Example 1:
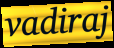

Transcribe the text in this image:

vadiraj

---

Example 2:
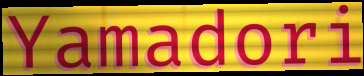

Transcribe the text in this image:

Yamadori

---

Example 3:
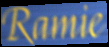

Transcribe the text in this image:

Ramie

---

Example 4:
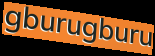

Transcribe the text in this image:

gburugburu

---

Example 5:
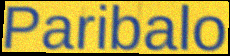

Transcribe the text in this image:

Paribalo